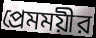
প্রেমময়ীর